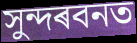
সুন্দৰবনত